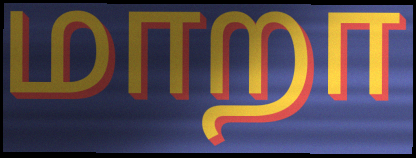
மாறா